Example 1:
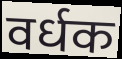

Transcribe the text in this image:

वर्धक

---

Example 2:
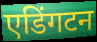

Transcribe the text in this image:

एडिंगटन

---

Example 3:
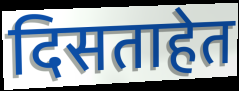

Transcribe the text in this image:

दिसताहेत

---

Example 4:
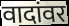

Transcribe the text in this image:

वादांवर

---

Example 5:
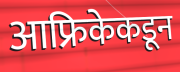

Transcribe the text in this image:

आफ्रिकेकडून